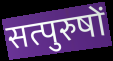
सत्पुरुषों